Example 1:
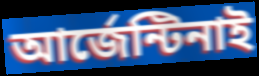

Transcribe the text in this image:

আর্জেন্টিনাই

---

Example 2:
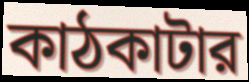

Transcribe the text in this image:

কাঠকাটার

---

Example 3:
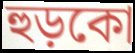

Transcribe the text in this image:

হুড়কো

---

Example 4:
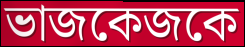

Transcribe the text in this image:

ভাজকেজকে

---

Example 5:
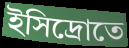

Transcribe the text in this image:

ইসিদ্রোতে